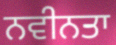
ਨਵੀਨਤਾ